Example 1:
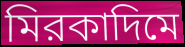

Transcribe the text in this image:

মিরকাদিমে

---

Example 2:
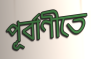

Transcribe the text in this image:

পূর্বাণীতে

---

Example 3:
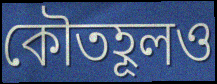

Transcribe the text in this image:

কৌতহূলও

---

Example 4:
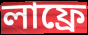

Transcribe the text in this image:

লাফ্রে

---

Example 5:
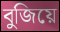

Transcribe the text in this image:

বুজিয়ে